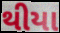
થીયા